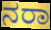
ನರಾ